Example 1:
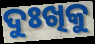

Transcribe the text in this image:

ଦୁଃଖିକୁ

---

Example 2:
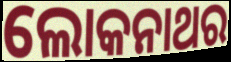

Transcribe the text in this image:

ଲୋକନାଥର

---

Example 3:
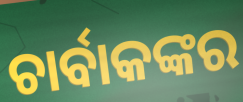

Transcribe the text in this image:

ଚାର୍ବାକଙ୍କର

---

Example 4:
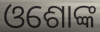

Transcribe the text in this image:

ଓଶୋଙ୍କ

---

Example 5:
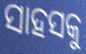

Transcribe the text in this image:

ସାହସକୁ